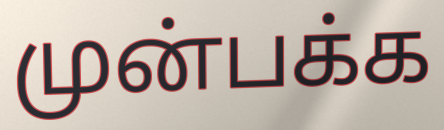
முன்பக்க